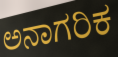
ಅನಾಗರಿಕ